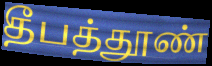
தீபத்தூண்